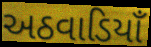
અઠવાડિયાઁ